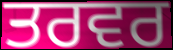
ਤਰਵਰ